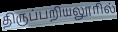
திருப்பறியலூரில்